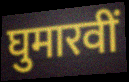
घुमारवीं